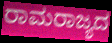
ರಾಮರಾಜ್ಯದ